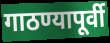
गाठण्यापूर्वी